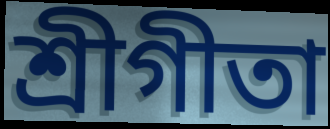
শ্রীগীতা